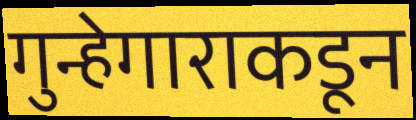
गुन्हेगाराकडून